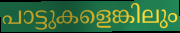
പാട്ടുകളെങ്കിലും